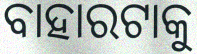
ବାହାରଟାକୁ